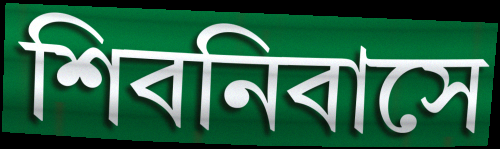
শিবনিবাসে